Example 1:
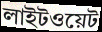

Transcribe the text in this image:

লাইটওয়েট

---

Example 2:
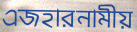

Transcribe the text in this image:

এজহারনামীয়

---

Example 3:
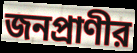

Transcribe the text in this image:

জনপ্রাণীর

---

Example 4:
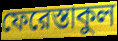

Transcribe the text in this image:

ফেরেস্তাকুল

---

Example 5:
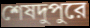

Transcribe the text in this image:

শেষদুপুরে